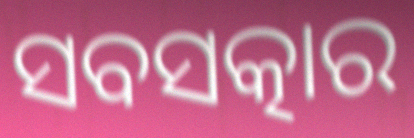
ସବସତ୍କାର